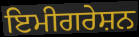
ਇਮੀਗਰੇਸ਼ਨ